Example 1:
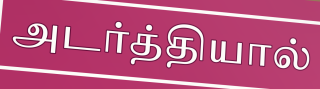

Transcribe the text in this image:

அடர்த்தியால்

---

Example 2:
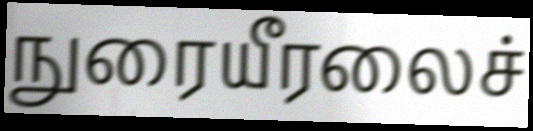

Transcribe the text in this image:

நுரையீரலைச்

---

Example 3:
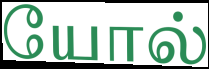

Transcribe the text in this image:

யோல்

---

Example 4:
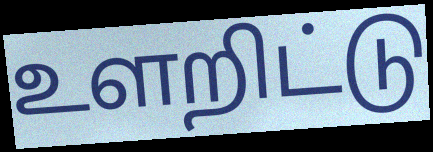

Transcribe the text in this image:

உளறிட்டு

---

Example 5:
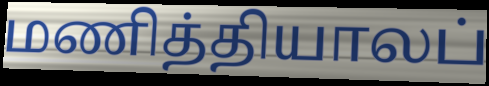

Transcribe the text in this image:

மணித்தியாலப்